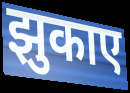
झुकाए